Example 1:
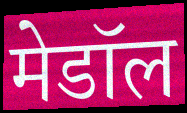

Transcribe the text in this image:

मेडॉल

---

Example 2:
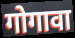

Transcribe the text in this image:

गोगावा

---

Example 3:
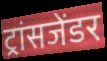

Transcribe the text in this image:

ट्रांसजेंडर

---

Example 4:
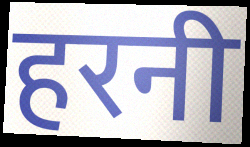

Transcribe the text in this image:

हरनी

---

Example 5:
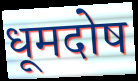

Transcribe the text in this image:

धूमदोष